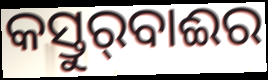
କସ୍ତୁର୍‍ବାଈର